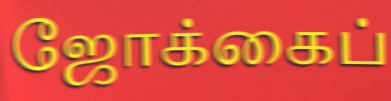
ஜோக்கைப்